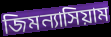
জিমন্যাসিয়াম